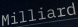
Milliard